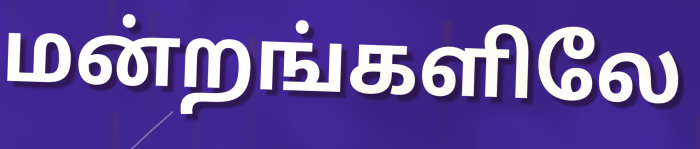
மன்றங்களிலே